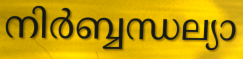
നിർബ്ബന്ധല്യാ